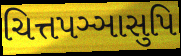
ચિત્તપઞ્ઞાસુપિ